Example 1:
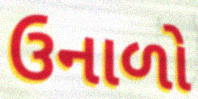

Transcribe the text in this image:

ઉનાળો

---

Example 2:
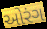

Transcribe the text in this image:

ઓરંગ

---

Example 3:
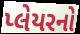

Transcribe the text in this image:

પ્લેયરનો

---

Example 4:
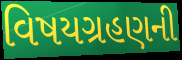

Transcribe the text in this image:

વિષયગ્રહણની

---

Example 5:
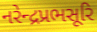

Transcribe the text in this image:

નરેન્દ્રપ્રભસૂરિ